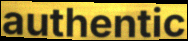
authentic